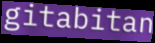
gitabitan